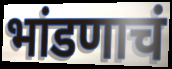
भांडणाचं